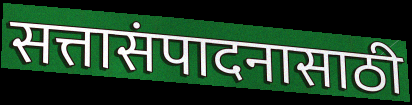
सत्तासंपादनासाठी